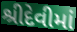
શ્રીદેવીમાં